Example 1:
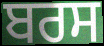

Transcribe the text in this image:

ਬਰਸ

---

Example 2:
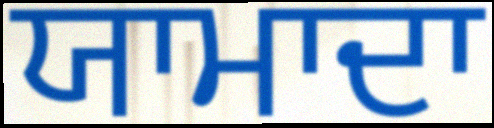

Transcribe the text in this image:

ਯਾਮਾਦਾ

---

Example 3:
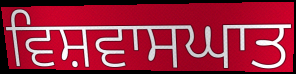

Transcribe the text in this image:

ਵਿਸ਼ਵਾਸਘਾਤ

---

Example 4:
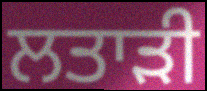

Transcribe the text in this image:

ਲਤਾੜੀ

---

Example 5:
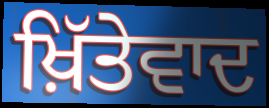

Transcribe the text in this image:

ਖ਼ਿੱਤੇਵਾਦ